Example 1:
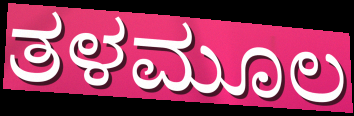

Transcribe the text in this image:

ತಳಮೂಲ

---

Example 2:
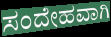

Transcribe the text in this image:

ಸಂದೇಹವಾಗಿ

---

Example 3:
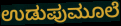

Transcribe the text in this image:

ಉಡುಪುಮೂಲೆ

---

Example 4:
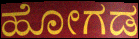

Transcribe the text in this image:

ಹೋಗಡ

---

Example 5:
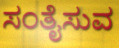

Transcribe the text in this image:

ಸಂತೈಸುವ